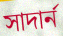
সাদার্ন